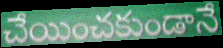
చేయించకుండానే